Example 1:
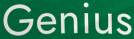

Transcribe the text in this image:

Genius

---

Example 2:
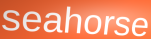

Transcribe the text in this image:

seahorse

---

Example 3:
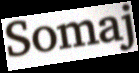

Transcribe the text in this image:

Somaj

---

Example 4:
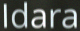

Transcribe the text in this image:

Idara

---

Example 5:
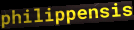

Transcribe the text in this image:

philippensis